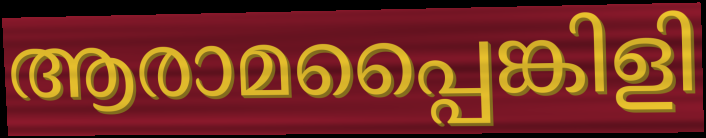
ആരാമപ്പൈങ്കിളി